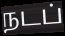
நடப்